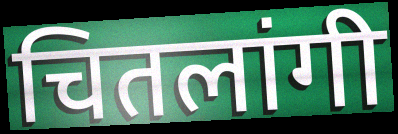
चितलांगी